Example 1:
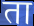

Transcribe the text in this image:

ता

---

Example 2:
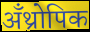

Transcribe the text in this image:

अँथ्रोपिक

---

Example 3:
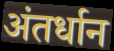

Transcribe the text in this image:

अंतर्धान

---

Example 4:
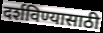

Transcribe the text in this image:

दर्शविण्यासाठी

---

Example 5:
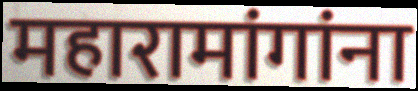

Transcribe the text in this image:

महारामांगांना